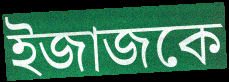
ইজাজকে